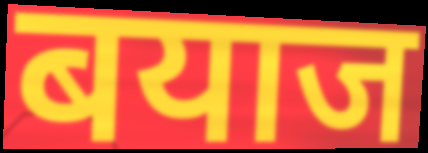
बयाज